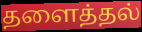
தளைத்தல்